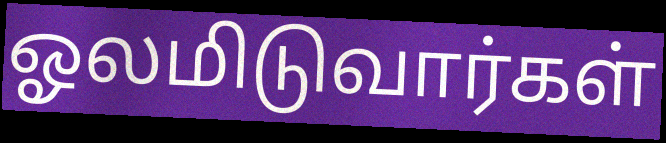
ஓலமிடுவார்கள்